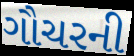
ગૌચરની